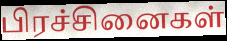
பிரச்சினைகள்